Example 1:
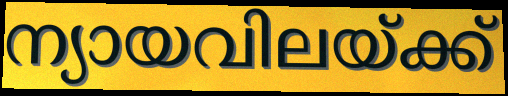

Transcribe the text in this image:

ന്യായവിലയ്ക്ക്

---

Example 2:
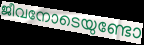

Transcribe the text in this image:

ജീവനോടെയുണ്ടോ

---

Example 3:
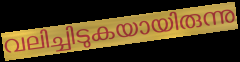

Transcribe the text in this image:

വലിച്ചിടുകയായിരുന്നു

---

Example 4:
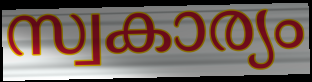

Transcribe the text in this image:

സ്വകാര്യം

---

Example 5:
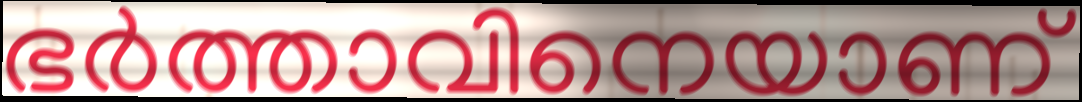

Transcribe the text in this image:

ഭർത്താവിനെയാണ്